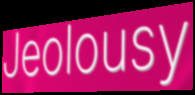
Jeolousy